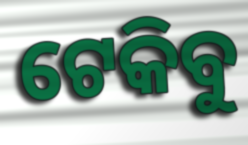
ଟେକିବୁ